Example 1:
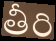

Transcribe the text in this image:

తీరి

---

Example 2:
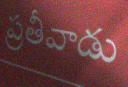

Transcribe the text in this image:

ప్రతీవాడు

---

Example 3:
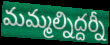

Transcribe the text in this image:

మమ్మల్నిద్దర్నీ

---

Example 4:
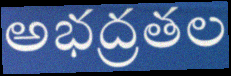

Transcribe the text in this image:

అభద్రతల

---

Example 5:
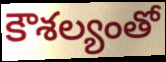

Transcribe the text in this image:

కౌశల్యంతో